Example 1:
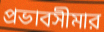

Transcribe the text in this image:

প্রভাবসীমার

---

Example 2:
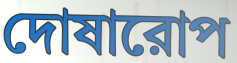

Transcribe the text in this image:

দোষারোপ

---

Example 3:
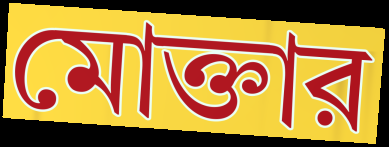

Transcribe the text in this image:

মোক্তার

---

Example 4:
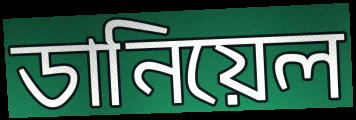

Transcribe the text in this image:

ডানিয়েল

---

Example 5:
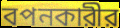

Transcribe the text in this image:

বপনকারীর